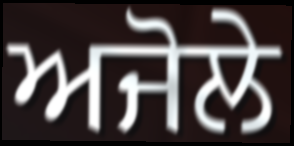
ਅਜੋਲੇ